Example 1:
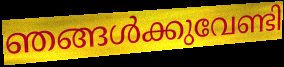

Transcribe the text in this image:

ഞങ്ങൾക്കുവേണ്ടി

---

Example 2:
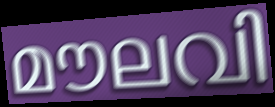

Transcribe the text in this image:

മൗലവി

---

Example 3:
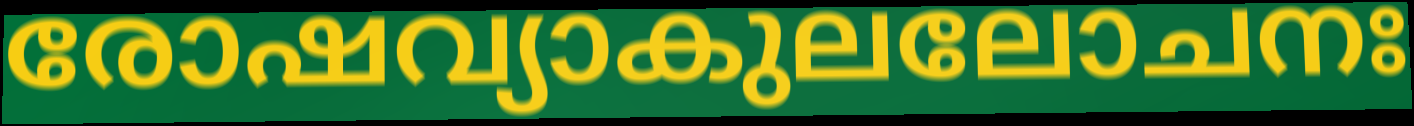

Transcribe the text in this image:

രോഷവ്യാകുലലോചനഃ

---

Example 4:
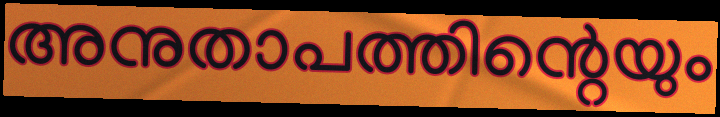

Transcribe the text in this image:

അനുതാപത്തിന്റെയും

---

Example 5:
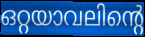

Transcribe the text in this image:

ഒറ്റയാവലിന്റെ